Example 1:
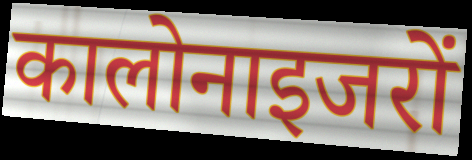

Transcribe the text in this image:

कालोनाइजरों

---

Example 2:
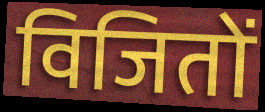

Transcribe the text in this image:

विजितों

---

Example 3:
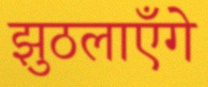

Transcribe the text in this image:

झुठलाएँगे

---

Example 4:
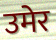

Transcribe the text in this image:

उमेर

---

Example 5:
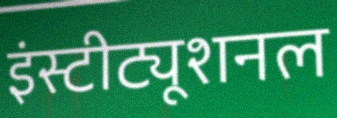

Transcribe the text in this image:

इंस्टीट्यूशनल